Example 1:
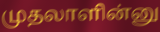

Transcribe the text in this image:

முதலாளின்னு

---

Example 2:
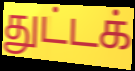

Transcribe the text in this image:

துட்டக்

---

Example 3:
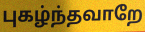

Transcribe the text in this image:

புகழ்ந்தவாறே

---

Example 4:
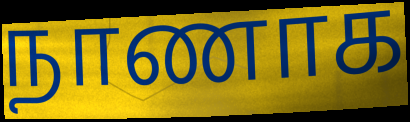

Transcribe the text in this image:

நாணாக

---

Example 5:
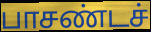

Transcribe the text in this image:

பாசண்டச்